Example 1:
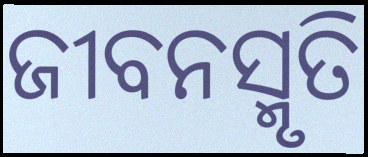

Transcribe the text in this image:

ଜୀବନସ୍ମୃତି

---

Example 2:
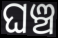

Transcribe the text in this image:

ଘଞ୍ଚ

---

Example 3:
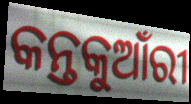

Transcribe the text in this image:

କନ୍ତକୁଆଁରୀ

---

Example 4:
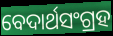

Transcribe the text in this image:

ବେଦାର୍ଥସଂଗ୍ରହ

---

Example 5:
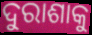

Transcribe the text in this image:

ଦୁରାଶାକୁ